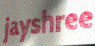
jayshree